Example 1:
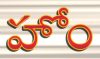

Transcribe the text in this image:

హోం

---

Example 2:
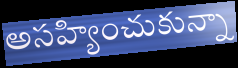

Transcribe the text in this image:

అసహ్యించుకున్నా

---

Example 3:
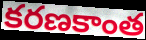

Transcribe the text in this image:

కరణకాంత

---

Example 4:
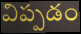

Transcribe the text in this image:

విప్పడం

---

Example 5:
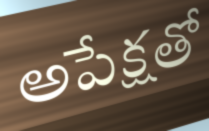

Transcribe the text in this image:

అపేక్షతో